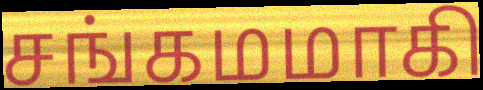
சங்கமமாகி